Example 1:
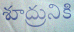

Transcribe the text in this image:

శూద్రునికి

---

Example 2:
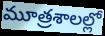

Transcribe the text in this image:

మూత్రశాలల్లో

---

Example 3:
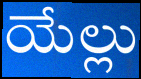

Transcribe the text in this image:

యేల్లు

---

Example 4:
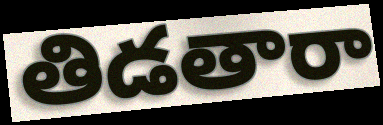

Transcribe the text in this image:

తిడతారా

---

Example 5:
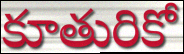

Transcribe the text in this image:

కూతురికో